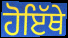
ਹੋਇੱਥੇ